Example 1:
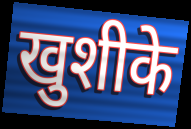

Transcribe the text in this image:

खुशीके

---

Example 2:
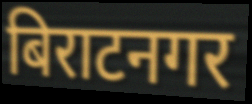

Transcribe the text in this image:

बिराटनगर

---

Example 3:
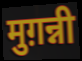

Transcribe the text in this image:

मुग़न्नी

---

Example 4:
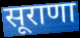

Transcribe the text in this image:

सूराणा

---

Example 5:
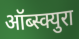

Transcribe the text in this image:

ऑब्स्क्युरा